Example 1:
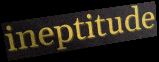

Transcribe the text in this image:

ineptitude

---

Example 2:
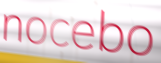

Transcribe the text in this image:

nocebo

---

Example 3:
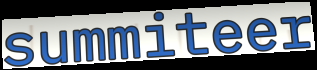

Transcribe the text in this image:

summiteer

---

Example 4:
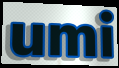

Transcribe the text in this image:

umi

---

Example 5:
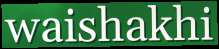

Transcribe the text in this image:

waishakhi